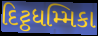
દિટ્ઠધમ્મિકા